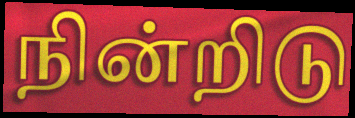
நின்றிடு